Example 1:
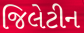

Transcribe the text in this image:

જિલેટીન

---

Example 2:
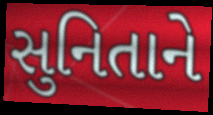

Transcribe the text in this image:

સુનિતાને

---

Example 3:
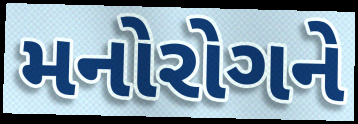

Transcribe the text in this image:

મનોરોગને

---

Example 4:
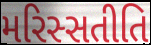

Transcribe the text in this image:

મરિસ્સતીતિ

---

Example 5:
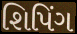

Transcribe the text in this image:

શિપિંગ